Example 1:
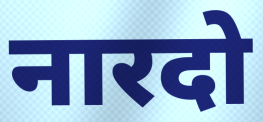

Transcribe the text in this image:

नारदो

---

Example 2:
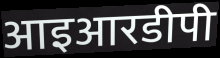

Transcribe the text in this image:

आइआरडीपी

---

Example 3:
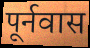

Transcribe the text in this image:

पूर्नवास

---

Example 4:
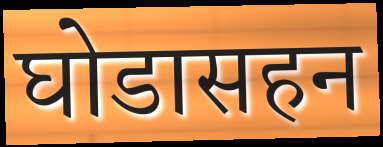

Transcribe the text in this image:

घोडासहन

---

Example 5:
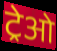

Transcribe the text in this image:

ट्रेओ